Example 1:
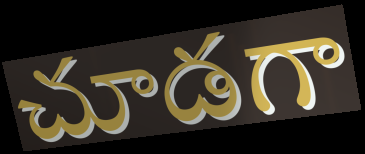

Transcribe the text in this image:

చూడగా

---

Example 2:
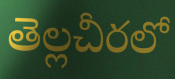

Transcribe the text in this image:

తెల్లచీరలో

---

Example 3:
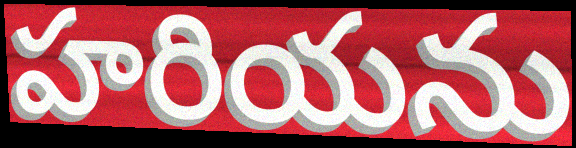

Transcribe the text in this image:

హరియను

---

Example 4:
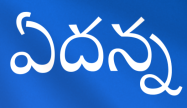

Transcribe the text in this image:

ఏదన్న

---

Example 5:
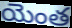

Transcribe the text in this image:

యెంత